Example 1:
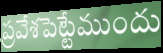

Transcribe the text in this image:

ప్రవేశపెట్టేముందు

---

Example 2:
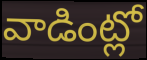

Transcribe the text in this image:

వాడింట్లో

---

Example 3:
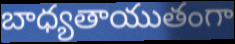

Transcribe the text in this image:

బాధ్యతాయుతంగా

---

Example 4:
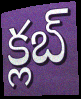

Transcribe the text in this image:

క్లబ్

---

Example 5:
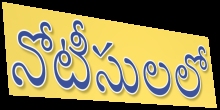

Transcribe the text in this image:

నోటీసులలో